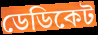
ডেডিকেট